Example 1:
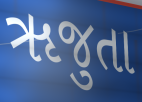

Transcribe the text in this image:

ૠજુતા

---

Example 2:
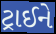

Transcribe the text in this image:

ટ્રાઈને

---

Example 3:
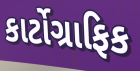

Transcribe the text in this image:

કાર્ટોગ્રાફિક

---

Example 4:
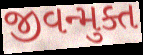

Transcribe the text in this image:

જીવન્મુક્ત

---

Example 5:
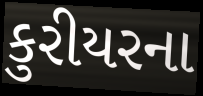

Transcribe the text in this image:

કુરીયરના